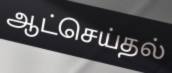
ஆட்செய்தல்